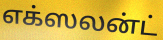
எக்ஸலன்ட்